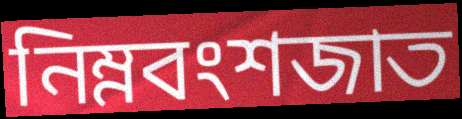
নিম্নবংশজাত